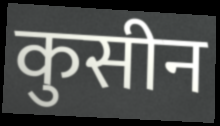
कुसीन